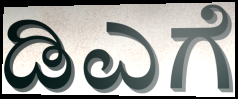
ಡಿಎಗೆ